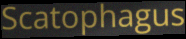
Scatophagus